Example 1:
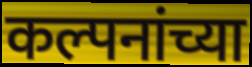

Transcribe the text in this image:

कल्पनांच्या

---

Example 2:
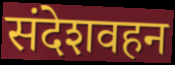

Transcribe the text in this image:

संदेशवहन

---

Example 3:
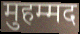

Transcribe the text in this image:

मुहम्मद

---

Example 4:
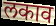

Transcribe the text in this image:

लकाव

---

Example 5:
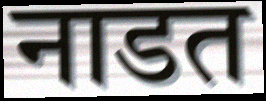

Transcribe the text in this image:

नाडत